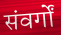
संवर्गों